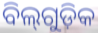
ବିଲ୍‌ଗୁଡ଼ିକ